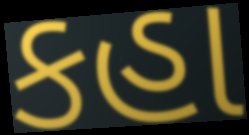
કહા